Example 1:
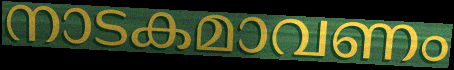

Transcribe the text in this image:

നാടകമാവണം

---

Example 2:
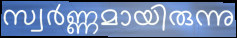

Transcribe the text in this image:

സ്വർണ്ണമായിരുന്നു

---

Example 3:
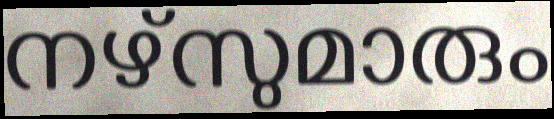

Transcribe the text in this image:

നഴ്സുമാരും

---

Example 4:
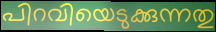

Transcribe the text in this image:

പിറവിയെടുക്കുന്നതു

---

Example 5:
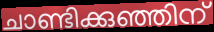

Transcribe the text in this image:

ചാണ്ടിക്കുഞ്ഞിന്